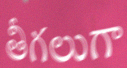
తీగలుగా